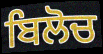
ਬਿਲੋਚ